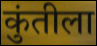
कुंतीला